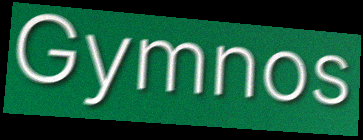
Gymnos